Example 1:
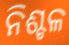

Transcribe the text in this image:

ନିଶ୍ଚଳ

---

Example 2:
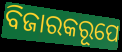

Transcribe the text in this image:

ବିଜାରକରୂପେ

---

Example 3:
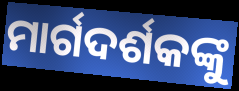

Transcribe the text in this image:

ମାର୍ଗଦର୍ଶକଙ୍କୁ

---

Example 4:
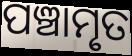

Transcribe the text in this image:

ପଞ୍ଚାମୃତ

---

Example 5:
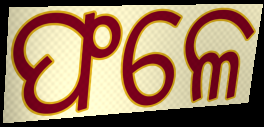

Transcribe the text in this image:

ଫଳେ